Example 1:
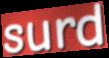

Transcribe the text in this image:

surd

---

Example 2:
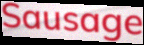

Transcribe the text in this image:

Sausage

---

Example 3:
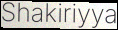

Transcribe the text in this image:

Shakiriyya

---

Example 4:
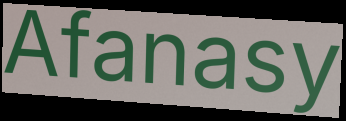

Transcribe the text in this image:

Afanasy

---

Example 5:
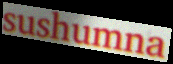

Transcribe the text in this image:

sushumna